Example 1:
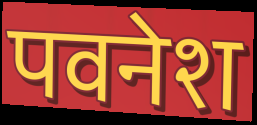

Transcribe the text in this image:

पवनेश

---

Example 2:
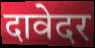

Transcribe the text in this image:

दावेदर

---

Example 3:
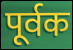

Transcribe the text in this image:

पूर्वक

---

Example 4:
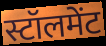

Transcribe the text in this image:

स्टॉलमेंट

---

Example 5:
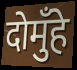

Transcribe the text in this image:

दोमुँहे